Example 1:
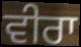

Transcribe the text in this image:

ਵੀਰਾ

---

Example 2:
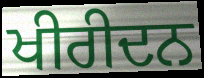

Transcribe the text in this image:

ਖੀਰੀਦਨ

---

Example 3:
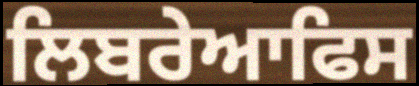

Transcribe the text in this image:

ਲਿਬਰੇਆਫਿਸ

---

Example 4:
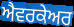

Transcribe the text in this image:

ਐਵਰਕੇਅਰ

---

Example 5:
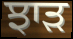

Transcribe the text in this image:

ਝਾੜ